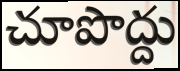
చూపొద్దు